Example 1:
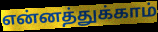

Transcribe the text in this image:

என்னத்துக்காம்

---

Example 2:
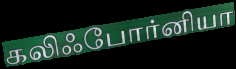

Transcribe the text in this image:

கலிஃபோர்னியா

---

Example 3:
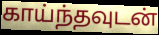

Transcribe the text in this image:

காய்ந்தவுடன்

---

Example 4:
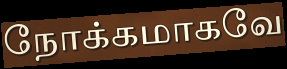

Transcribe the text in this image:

நோக்கமாகவே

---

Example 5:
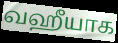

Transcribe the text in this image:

வஹீயாக